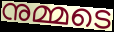
നുമ്മടെ